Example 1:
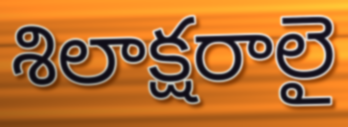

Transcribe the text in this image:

శిలాక్షరాలై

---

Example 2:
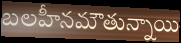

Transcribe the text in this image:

బలహీనమౌతున్నాయి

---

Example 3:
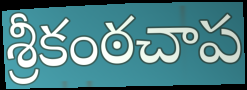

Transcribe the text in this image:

శ్రీకంఠచాప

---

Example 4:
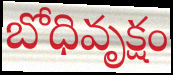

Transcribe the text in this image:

బోధివృక్షం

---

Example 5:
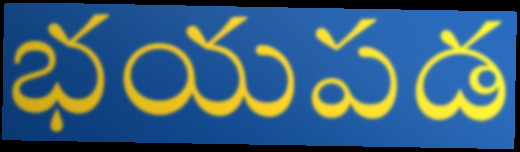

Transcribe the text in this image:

భయపడ